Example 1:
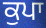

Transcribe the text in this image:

ਕੁਪਾ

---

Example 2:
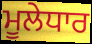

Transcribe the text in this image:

ਮੂਲੇਧਾਰ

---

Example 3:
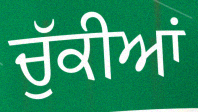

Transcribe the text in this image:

ਚੁੱਕੀਆਂ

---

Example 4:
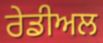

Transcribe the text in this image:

ਰੇਡੀਅਲ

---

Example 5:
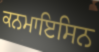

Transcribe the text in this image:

ਕਨਮਾਇਸਿਨ